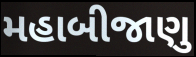
મહાબીજાણુ